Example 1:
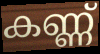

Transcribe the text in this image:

കണ്ണ്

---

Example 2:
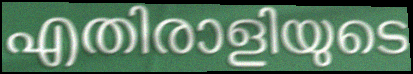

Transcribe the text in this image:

എതിരാളിയുടെ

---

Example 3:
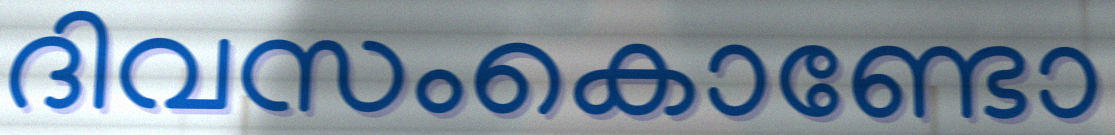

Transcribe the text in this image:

ദിവസംകൊണ്ടോ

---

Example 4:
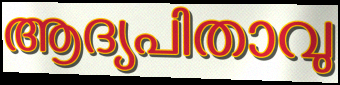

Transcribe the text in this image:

ആദ്യപിതാവു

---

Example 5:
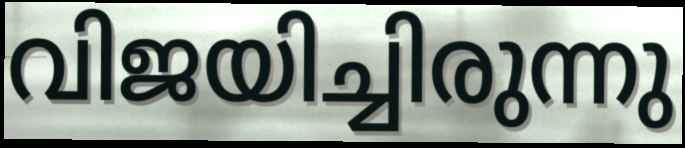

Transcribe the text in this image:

വിജയിച്ചിരുന്നു